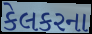
કેલકરના